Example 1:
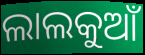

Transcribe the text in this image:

ଲାଲକୁଆଁ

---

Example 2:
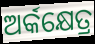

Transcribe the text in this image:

ଅର୍କକ୍ଷେତ୍ର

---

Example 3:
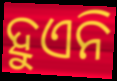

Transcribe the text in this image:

ହୁଏନି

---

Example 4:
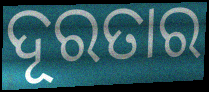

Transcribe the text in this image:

ଦୂରତାର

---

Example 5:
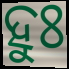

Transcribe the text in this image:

ହୁଃ